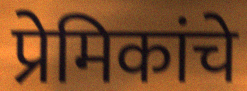
प्रेमिकांचे